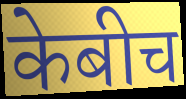
केबीच